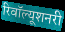
रिवॉल्यूशनरी